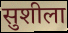
सुशीला